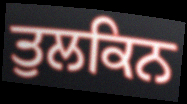
ਤੁਲਕਿਨ